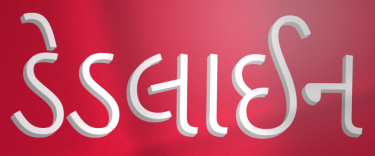
ડેડલાઈન